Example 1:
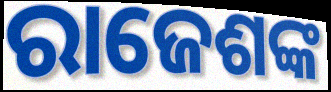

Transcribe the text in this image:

ରାଜେଶଙ୍କ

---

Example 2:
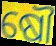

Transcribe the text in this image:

ଷୌ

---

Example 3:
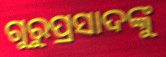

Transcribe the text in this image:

ଗୁରୁପ୍ରସାଦଙ୍କୁ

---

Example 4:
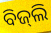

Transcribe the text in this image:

ବିଜ୍‍ଲି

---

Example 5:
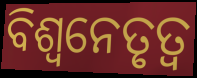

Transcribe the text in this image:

ବିଶ୍ୱନେତୃତ୍ୱ